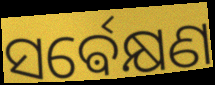
ସର୍ଵେକ୍ଷଣ